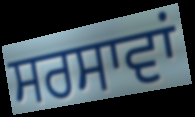
ਸਰਸਾਵਾਂ